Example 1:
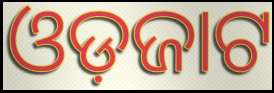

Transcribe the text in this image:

ଓଡ଼ଜାଟ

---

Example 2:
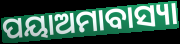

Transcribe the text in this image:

ପୟାଅମାବାସ୍ୟା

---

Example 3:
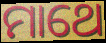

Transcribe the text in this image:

ମାଥେ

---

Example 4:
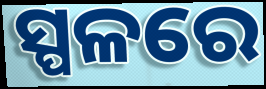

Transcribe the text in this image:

ସ୍ପଳରେ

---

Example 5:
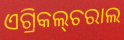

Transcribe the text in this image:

ଏଗ୍ରିକଲ୍‌ଚରାଲ